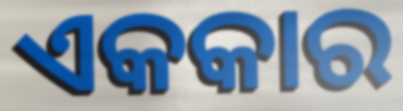
ଏକକାର